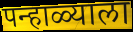
पन्हाळ्याला